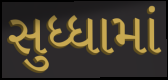
સુધ્ધામાં